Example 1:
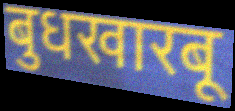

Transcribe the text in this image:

बुधखारबू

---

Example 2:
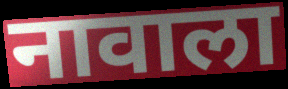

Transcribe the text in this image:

नावाला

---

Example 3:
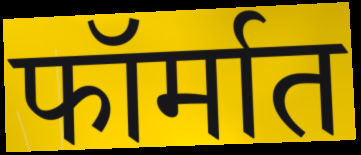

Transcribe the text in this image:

फॉर्मात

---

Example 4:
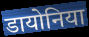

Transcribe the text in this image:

डायोनिया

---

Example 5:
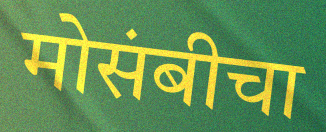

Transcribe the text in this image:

मोसंबीचा